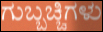
ಗುಬ್ಬಚ್ಚಿಗಳು